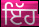
ਇੱਹ